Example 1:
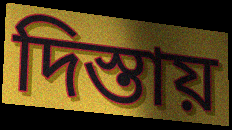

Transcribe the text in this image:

দিস্তায়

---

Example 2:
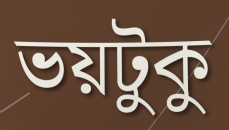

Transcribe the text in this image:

ভয়টুকু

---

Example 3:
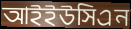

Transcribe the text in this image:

আইইউসিএন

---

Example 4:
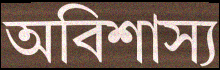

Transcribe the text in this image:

অবিশাস্য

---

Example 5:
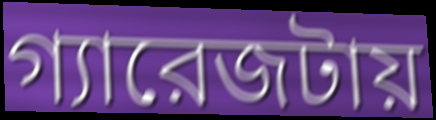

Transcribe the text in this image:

গ্যারেজটায়